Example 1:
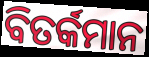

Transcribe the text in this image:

ବିତର୍କମାନ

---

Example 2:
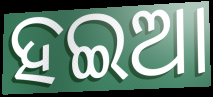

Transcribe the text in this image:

ହଇଆ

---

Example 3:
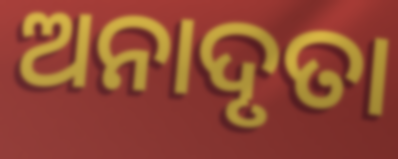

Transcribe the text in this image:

ଅନାଦୃତା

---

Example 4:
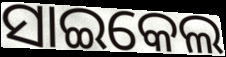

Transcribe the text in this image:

ସାଇକେଲ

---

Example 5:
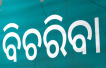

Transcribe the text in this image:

ବିଚରିବା